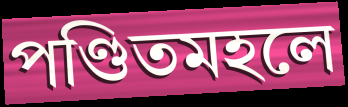
পণ্ডিতমহলে